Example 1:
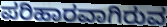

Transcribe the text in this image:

ಪರಿಹಾರವಾಗಿರುವ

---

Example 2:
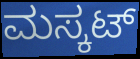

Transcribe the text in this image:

ಮಸ್ಕಟ್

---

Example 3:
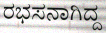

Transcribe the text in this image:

ರಭಸನಾಗಿದ್ದ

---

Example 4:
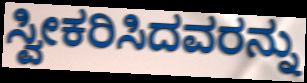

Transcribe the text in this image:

ಸ್ವೀಕರಿಸಿದವರನ್ನು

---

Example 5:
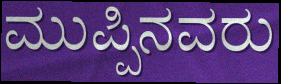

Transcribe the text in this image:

ಮುಪ್ಪಿನವರು